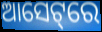
ଆସେଟ୍‌ରେ